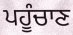
ਪਹੂੰਚਾਣ